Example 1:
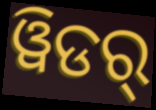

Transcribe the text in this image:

ୱିଡର୍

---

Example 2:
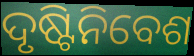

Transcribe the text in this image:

ଦୃଷ୍ଟିନିବେଶ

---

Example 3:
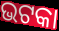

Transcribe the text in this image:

ଭଟକା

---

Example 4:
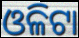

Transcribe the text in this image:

ଓଳିଟା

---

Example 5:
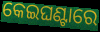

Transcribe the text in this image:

କେଇଘଣ୍ଟାରେ